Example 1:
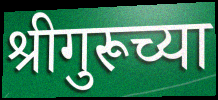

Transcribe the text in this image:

श्रीगुरूच्या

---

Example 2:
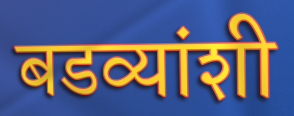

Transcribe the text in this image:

बडव्यांशी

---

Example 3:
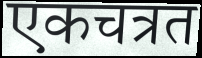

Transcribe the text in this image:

एकचत्रत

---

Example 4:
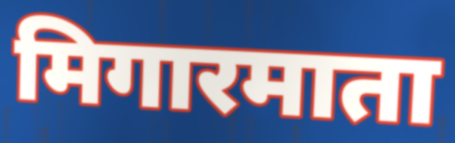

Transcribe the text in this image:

मिगारमाता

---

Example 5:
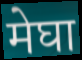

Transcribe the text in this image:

मेघा